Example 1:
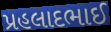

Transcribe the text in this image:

પ્રહલાદભાઈ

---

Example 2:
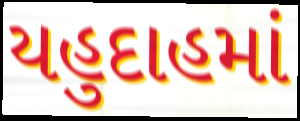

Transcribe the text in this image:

યહુદાહમાં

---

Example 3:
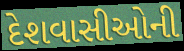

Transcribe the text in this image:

દેશવાસીઓની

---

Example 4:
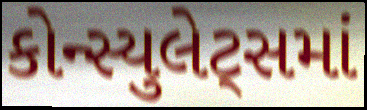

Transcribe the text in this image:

કોન્સ્યુલેટ્સમાં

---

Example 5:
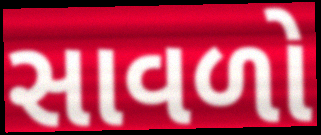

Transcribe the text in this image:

સાવળો